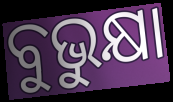
ବୁଭୁକ୍ଷା